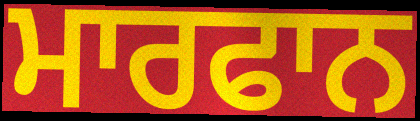
ਮਾਰਫਾਨ